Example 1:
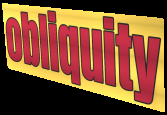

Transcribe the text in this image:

obliquity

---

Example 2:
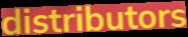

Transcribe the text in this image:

distributors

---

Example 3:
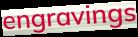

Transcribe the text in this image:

engravings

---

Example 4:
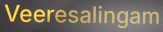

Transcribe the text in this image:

Veeresalingam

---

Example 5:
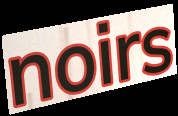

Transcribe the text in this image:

noirs